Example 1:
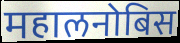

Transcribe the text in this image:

महालनोबिस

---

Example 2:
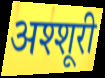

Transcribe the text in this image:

अश्‍शूरी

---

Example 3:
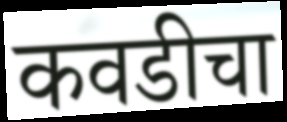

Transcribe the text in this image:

कवडीचा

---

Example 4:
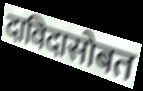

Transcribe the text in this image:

दाविदासोबत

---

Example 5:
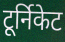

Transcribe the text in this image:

टूर्निकेट